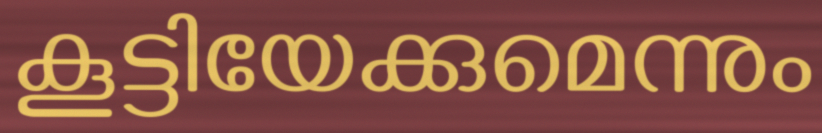
കൂട്ടിയേക്കുമെന്നും